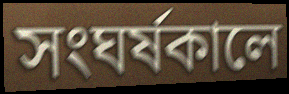
সংঘর্ষকালে